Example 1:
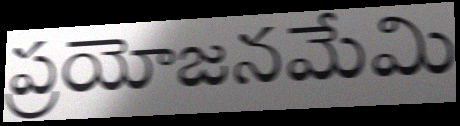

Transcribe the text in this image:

ప్రయోజనమేమి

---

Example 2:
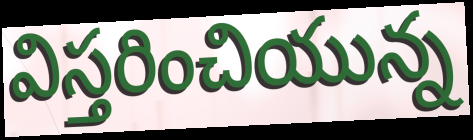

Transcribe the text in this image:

విస్తరించియున్న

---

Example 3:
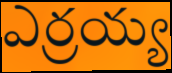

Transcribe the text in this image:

ఎర్రయ్య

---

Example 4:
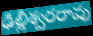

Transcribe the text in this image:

ఢిల్లీశ్వరరావు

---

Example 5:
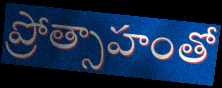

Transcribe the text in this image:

ప్రోత్సాహంతో